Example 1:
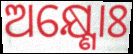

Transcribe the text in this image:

ଅକ୍ଷ୍ଣୋଃ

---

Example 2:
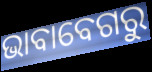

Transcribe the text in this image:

ଭାବାବେଗରୁ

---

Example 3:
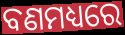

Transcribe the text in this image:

ବଣମଧ୍ଯରେ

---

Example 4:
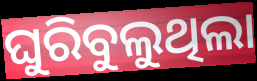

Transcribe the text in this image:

ଘୁରିବୁଲୁଥିଲା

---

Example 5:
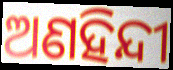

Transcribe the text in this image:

ଅଣହିନ୍ଦୀ